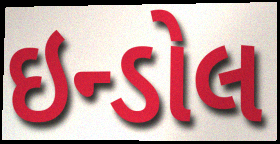
ઇન્ડોલ